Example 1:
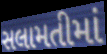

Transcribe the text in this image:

સલામતીમાં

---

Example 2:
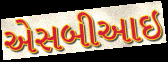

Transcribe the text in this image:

એસબીઆઇ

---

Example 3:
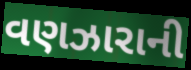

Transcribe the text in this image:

વણઝારાની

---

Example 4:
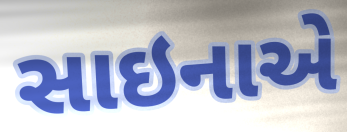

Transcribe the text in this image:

સાઇનાએ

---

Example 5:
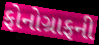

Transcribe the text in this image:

ફોનોગ્રાફની